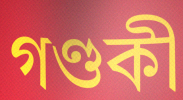
গণ্ডকী